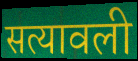
सत्यावली